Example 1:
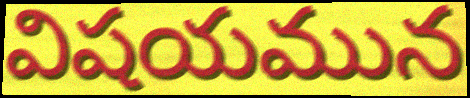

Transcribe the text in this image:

విషయమున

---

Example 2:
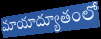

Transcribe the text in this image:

మాయాద్యూతంలో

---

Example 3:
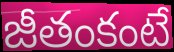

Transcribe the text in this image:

జీతంకంటే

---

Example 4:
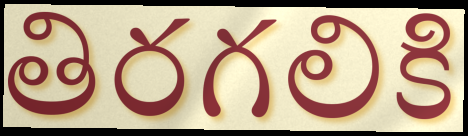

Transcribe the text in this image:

తిరగలికి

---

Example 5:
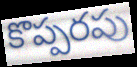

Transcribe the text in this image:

కొప్పరపు